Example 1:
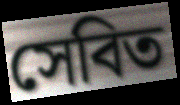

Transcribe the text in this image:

সেবিত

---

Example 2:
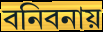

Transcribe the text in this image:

বনিবনায়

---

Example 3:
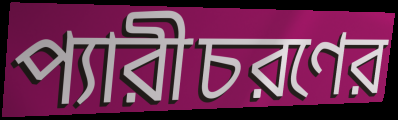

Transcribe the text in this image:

প্যারীচরণের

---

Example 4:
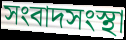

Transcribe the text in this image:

সংবাদসংস্থা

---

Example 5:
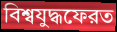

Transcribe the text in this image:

বিশ্বযুদ্ধফেরত